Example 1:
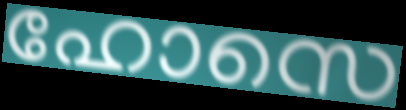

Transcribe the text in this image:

ഹോസെ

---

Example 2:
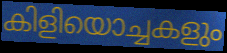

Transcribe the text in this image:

കിളിയൊച്ചകളും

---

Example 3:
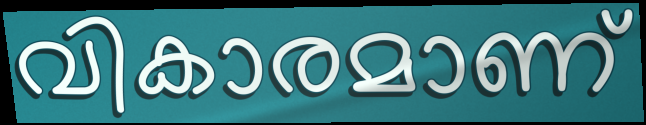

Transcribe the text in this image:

വികാരമാണ്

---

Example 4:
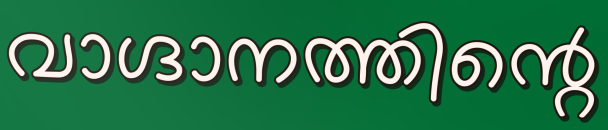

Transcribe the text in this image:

വാഗ്ദാനത്തിന്റെ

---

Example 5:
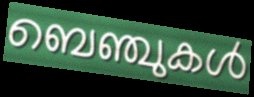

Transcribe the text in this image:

ബെഞ്ചുകൾ